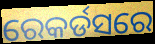
ରେକର୍ଡସରେ